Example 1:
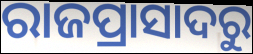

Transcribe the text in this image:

ରାଜପ୍ରାସାଦରୁ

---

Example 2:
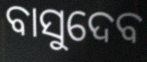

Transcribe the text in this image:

ବାସୁଦେବ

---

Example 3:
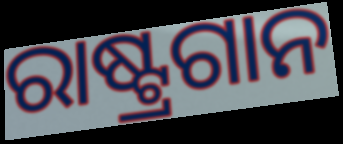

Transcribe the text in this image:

ରାଷ୍ଟ୍ରଗାନ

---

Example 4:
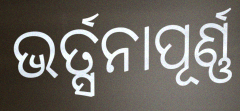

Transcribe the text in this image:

ଭର୍ତ୍ସନାପୂର୍ଣ୍ଣ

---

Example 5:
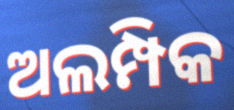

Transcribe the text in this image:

ଅଲମ୍ପିକ